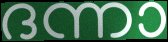
ദന്നാ